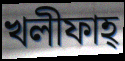
খলীফাহ্